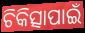
ଚିକିତ୍ସାପାଇଁ